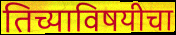
तिच्याविषयीचा